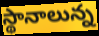
స్థానాలున్న